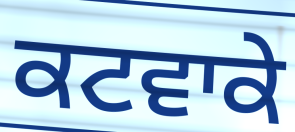
ਕਟਵਾਕੇ